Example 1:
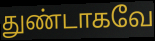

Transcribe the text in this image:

துண்டாகவே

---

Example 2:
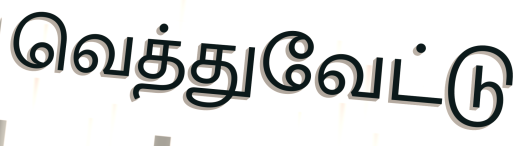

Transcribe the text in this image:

வெத்துவேட்டு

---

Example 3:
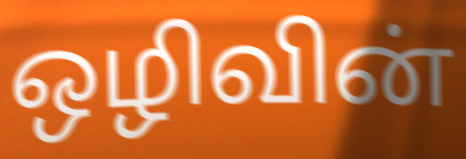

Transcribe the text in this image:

ஒழிவின்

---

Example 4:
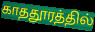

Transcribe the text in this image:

காததூரத்தில்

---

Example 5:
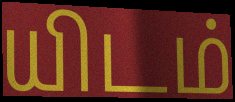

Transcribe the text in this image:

யிடம்